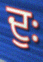
ਦੁਃ